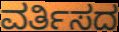
ವರ್ತಿಸದ